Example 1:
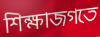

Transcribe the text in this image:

শিক্ষাজগতে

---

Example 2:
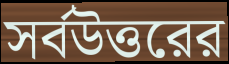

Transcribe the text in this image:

সর্বউত্তরের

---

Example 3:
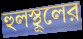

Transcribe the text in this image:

হুলস্থূলের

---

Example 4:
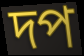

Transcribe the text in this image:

দপ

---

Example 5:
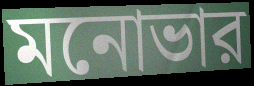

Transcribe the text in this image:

মনোভার